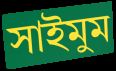
সাইমুম